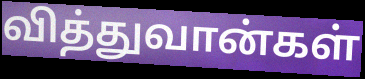
வித்துவான்கள்